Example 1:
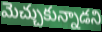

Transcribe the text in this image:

మెచ్చుకున్నాడని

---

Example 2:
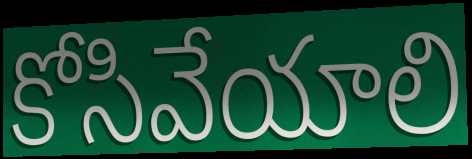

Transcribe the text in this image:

కోసివేయాలి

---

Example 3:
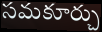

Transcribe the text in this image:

సమకూర్చు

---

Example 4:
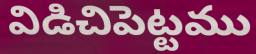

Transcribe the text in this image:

విడిచిపెట్టము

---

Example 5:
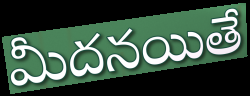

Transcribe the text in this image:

మీదనయితే